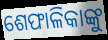
ଶେଫାଳିକାଙ୍କୁ